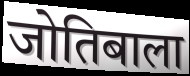
जोतिबाला